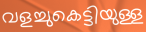
വളച്ചുകെട്ടിയുള്ള